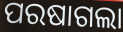
ପରଷାଗଲା